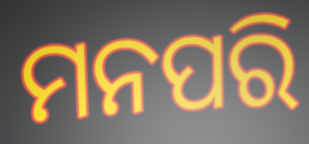
ମନପରି